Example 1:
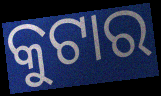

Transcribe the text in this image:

କୁଟାର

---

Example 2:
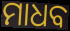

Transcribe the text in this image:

ମାଧବ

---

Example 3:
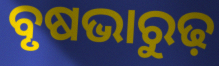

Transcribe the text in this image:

ବୃଷଭାରୁଢ଼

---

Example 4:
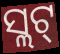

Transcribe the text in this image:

ସ୍ଲଟ୍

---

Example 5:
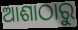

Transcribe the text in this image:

ଆଶାଠାରୁ